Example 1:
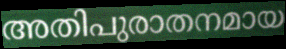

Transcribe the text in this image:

അതിപുരാതനമായ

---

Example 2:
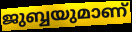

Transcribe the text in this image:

ജുബ്ബയുമാണ്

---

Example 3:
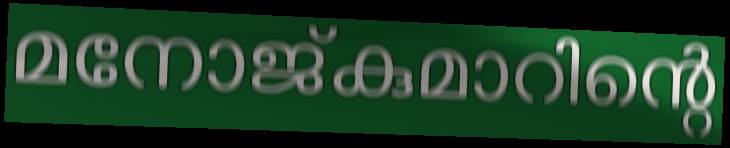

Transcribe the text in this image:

മനോജ്കുമാറിന്റെ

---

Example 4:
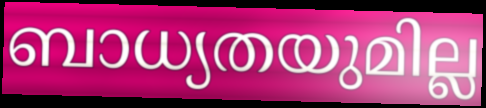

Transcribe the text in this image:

ബാധ്യതയുമില്ല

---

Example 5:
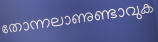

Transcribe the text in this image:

തോന്നലാണുണ്ടാവുക